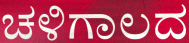
ಚಳಿಗಾಲದ